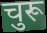
चुरू